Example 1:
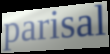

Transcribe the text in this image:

parisal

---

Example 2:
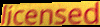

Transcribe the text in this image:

licensed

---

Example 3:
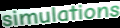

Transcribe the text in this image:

simulations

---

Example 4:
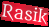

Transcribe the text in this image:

Rasik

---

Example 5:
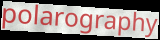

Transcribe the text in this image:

polarography